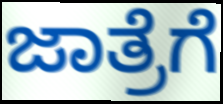
ಜಾತ್ರೆಗೆ